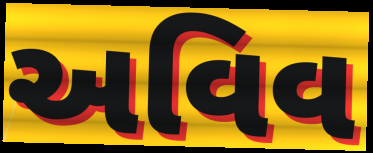
અવિવ